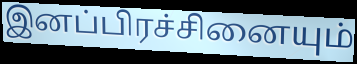
இனப்பிரச்சினையும்